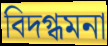
বিদগ্ধমনা